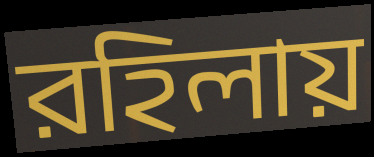
রহিলায়